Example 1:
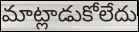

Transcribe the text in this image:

మాట్లాడుకోలేదు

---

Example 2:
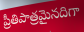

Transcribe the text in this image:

ప్రీతిపాత్రమైనదిగా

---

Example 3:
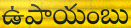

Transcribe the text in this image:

ఉపాయంబు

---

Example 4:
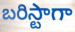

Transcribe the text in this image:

బరిస్టాగా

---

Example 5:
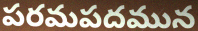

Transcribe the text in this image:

పరమపదమున